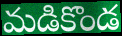
మడికొండ